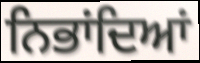
ਨਿਭਾਂਦਿਆਂ